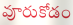
వూరుకోడం